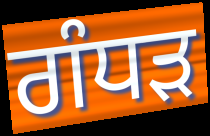
ਗੰਧੜ